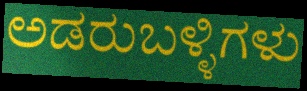
ಅಡರುಬಳ್ಳಿಗಳು